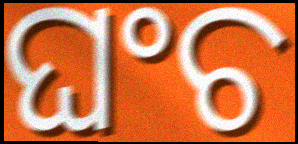
ଘଂଚ